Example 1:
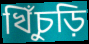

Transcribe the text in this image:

খিঁচুড়ি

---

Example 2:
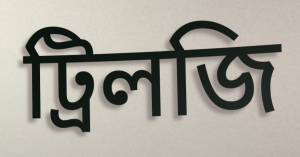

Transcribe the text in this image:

ট্রিলজি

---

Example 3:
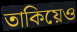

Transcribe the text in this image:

তাকিয়েও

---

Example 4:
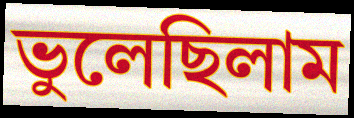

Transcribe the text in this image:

ভুলেছিলাম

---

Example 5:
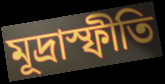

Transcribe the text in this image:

মূদ্রাস্ফীতি